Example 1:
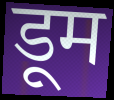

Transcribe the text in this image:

डूम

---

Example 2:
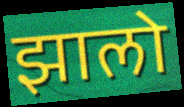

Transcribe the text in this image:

झालो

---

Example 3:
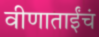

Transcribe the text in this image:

वीणाताईंचं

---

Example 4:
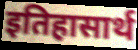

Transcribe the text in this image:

इतिहासार्थ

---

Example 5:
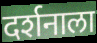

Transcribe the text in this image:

दर्शनाला